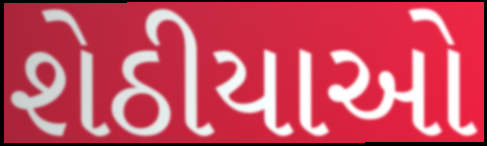
શેઠીયાઓ